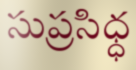
సుప్రసిధ్ధ